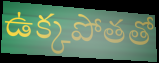
ఉక్కపోతతో